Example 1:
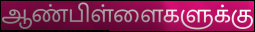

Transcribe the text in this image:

ஆண்பிள்ளைகளுக்கு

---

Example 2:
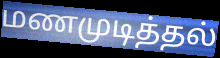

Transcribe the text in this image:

மணமுடித்தல்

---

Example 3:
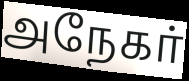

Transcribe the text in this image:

அநேகர்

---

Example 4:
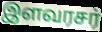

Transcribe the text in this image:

இளவரசர்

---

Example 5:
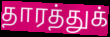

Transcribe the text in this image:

தாரத்துக்